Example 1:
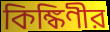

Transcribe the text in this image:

কিঙ্কিণীর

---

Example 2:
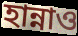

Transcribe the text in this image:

হান্নাও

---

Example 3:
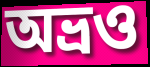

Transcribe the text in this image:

অভ্রও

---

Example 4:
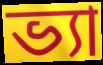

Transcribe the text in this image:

ভ্যা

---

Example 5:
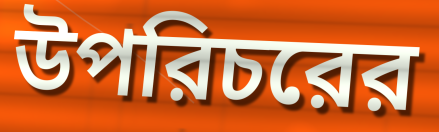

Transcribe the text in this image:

উপরিচরের